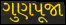
ગુણપૂજા